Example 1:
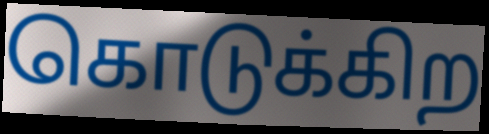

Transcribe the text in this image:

கொடுக்கிற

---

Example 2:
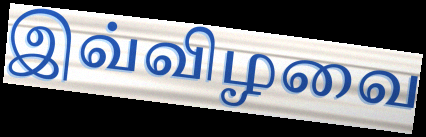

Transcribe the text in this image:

இவ்விழவை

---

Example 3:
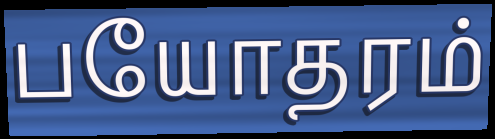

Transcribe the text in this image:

பயோதரம்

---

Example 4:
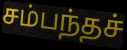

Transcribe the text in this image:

சம்பந்தச்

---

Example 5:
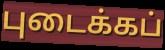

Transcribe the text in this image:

புடைக்கப்